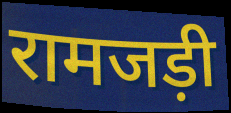
रामजड़ी